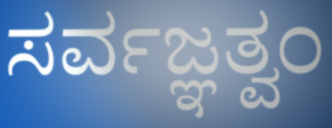
ಸರ್ವಜ್ಞತ್ವಂ